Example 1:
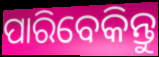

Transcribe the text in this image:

ପାରିବେକିନ୍ତୁ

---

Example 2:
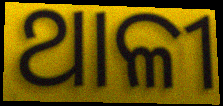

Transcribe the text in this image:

ଥାଳୀ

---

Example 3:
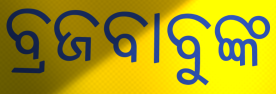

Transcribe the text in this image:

ବ୍ରଜବାବୁଙ୍କ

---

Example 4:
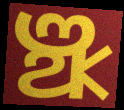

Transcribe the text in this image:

ଞ୍ଝ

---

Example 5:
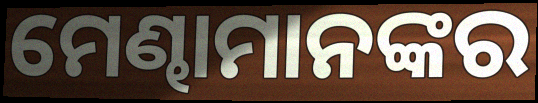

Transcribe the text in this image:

ମେଣ୍ଢାମାନଙ୍କର